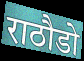
राठौडो